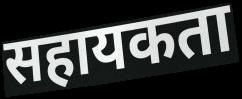
सहायकता